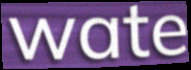
wate